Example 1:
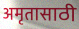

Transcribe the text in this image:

अमृतासाठी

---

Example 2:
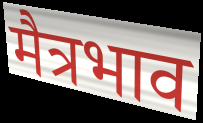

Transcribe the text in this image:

मैत्रभाव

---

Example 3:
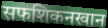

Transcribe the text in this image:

सफशिकनखान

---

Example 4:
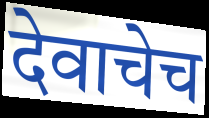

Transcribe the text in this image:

देवाचेच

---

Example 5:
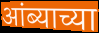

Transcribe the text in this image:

आंब्याच्या